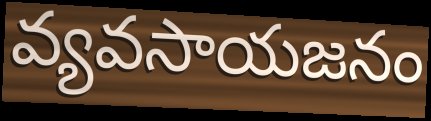
వ్యవసాయజనం